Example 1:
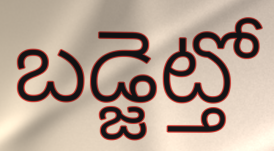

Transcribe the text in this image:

బడ్జెట్తో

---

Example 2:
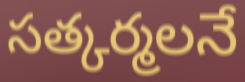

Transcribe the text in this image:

సత్కర్మలనే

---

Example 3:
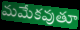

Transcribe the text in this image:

మమేకవుతూ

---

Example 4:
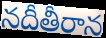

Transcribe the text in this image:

నదీతీరాన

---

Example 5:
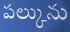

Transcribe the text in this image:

పల్కును